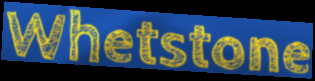
Whetstone